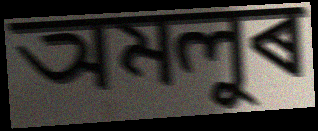
অমলুৰ